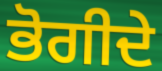
ਭੋਗੀਦੇ